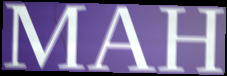
MAH